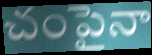
చంపైనా